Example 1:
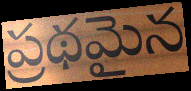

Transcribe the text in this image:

ప్రథమైన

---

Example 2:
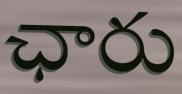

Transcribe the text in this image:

ఛారు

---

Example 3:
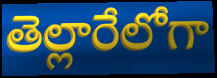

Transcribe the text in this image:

తెల్లారేలోగా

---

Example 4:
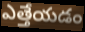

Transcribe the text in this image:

ఎత్తేయడం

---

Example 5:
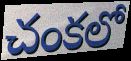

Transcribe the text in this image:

చంకలో